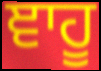
ਞਾਹੂ